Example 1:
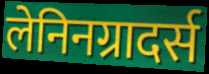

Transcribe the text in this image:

लेनिनग्रादर्स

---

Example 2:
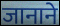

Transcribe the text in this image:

जानाने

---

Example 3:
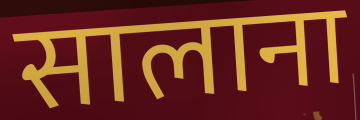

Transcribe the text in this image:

सालाना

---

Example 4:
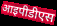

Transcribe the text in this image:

आइपीडीएस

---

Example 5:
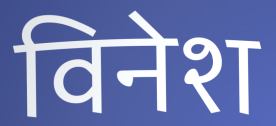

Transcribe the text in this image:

विनेश